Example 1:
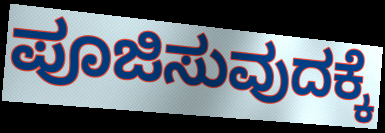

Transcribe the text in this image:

ಪೂಜಿಸುವುದಕ್ಕೆ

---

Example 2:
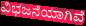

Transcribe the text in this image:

ವಿಭಜನೆಯಾಗಿವೆ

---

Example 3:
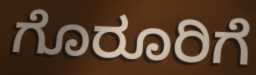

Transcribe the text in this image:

ಗೊರೂರಿಗೆ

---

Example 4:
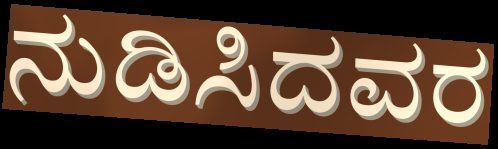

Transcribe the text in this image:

ನುಡಿಸಿದವರ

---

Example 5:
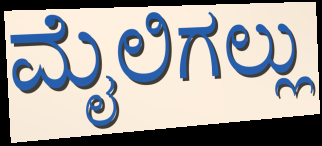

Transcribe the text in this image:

ಮೈಲಿಗಲ್ಲು